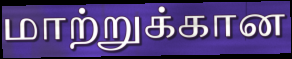
மாற்றுக்கான